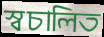
স্বচালিত